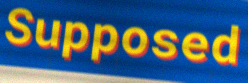
Supposed